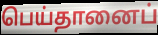
பெய்தானைப்